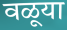
वळूया